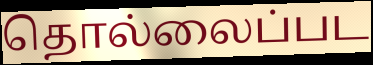
தொல்லைப்பட